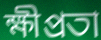
ক্ষীপ্ৰতা